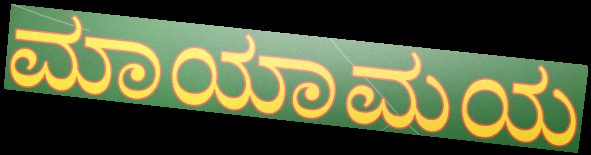
ಮಾಯಾಮಯ